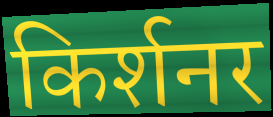
किर्शनर